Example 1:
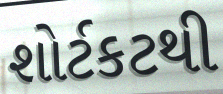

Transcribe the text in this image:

શોર્ટકટથી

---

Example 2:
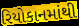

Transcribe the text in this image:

રિયોકાનમાંથી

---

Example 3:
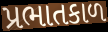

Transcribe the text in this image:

પ્રભાતકાળ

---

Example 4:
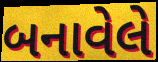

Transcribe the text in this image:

બનાવેલે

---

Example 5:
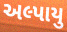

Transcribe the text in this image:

અલ્પાયુ